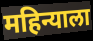
महिन्याला